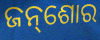
ଜନ୍‌ଶୋର